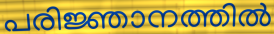
പരിജ്ഞാനത്തിൽ